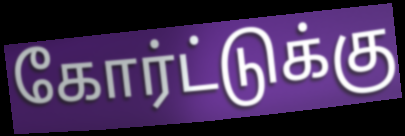
கோர்ட்டுக்கு